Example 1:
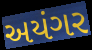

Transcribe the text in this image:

અયંગર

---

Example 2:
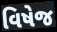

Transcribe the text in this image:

વિષેજ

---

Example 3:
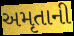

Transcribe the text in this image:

અમૃતાની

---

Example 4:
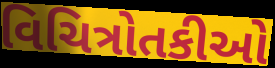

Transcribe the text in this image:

વિચિત્રોતકીઓ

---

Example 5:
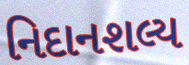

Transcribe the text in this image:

નિદાનશલ્ય